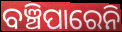
ବଞ୍ଚିପାରେନି